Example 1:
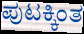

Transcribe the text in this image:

ಪುಟಕ್ಕಿಂತ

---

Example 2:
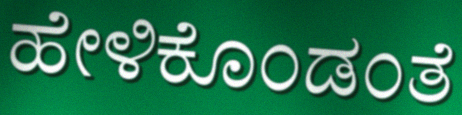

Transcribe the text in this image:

ಹೇಳಿಕೊಂಡಂತೆ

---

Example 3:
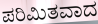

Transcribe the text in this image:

ಪರಿಮಿತವಾದ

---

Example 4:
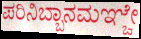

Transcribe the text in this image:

ಪರಿನಿಬ್ಬಾನಮಞ್ಚೇ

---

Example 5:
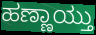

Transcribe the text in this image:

ಹಣ್ಣಾಯ್ತು